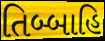
તિબ્બાહિ